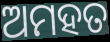
ଅମହତ